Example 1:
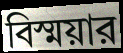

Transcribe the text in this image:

বিস্ময়ার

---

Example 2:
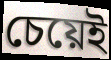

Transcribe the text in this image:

চেয়েই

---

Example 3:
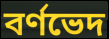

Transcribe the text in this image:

বর্ণভেদ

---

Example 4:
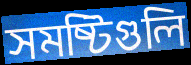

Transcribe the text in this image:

সমষ্টিগুলি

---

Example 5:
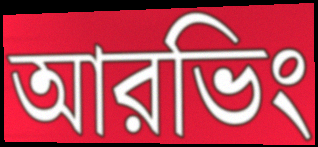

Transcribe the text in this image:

আরভিং